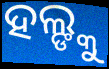
ହଲ୍ଙ୍କୁ